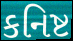
કનિષ્ટ